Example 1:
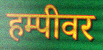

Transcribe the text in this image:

हम्पीवर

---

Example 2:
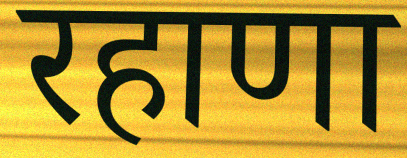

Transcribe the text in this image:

रहाणा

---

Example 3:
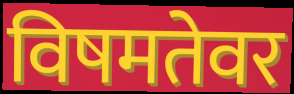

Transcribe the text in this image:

विषमतेवर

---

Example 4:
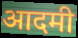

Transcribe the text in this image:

आदमी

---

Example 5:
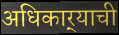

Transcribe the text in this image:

अधिकार्याची